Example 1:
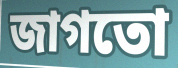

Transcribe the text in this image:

জাগতো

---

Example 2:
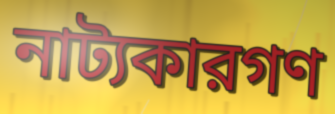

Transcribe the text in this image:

নাট্যকারগণ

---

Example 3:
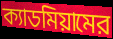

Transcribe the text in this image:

ক্যাডমিয়ামের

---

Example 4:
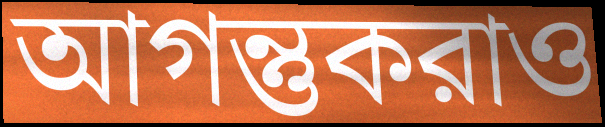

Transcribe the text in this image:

আগন্তুকরাও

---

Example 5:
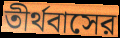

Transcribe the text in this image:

তীর্থবাসের